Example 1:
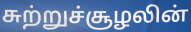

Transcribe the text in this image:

சுற்றுச்சூழலின்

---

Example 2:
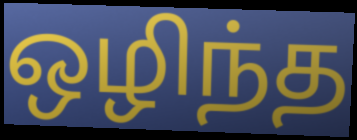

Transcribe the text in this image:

ஒழிந்த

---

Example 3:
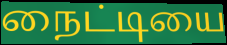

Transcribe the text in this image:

நைட்டியை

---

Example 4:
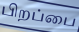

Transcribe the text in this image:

பிறப்பை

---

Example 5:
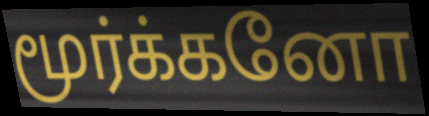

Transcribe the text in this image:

மூர்க்கனோ